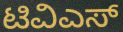
ಟಿವಿಎಸ್